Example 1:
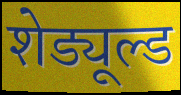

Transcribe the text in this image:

शेड्यूल्ड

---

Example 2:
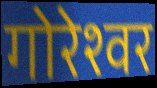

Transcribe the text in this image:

गोरेश्वर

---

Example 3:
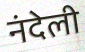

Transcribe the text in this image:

नंदेली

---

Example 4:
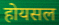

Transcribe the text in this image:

होयसल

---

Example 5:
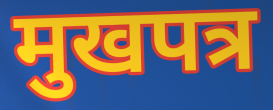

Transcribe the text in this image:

मुखपत्र